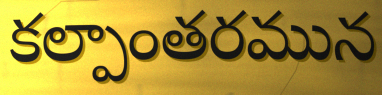
కల్పాంతరమున